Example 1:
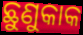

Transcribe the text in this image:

ଛୁଣୁକାକ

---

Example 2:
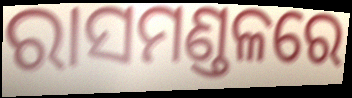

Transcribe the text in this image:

ରାସମଣ୍ଡଳରେ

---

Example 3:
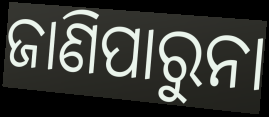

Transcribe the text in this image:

ଜାଣିପାରୁନା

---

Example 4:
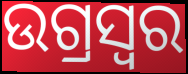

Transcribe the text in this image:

ଉଗ୍ରସ୍ୱର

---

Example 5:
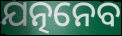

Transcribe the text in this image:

ଯତ୍ନନେବ